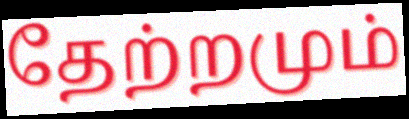
தேற்றமும்